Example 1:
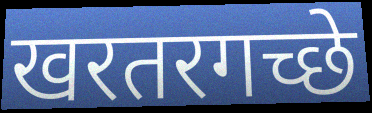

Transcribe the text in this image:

खरतरगच्छे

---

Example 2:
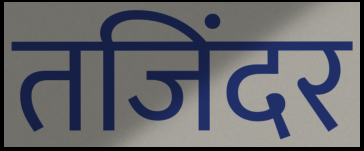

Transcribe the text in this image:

तजिंदर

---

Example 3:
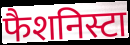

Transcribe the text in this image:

फैशनिस्टा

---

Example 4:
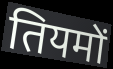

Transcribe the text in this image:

तियमों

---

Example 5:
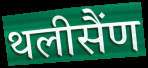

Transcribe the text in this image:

थलीसैंण